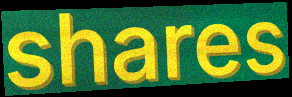
shares